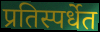
प्रतिस्पर्धेत